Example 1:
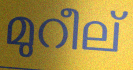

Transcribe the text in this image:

മുറീല്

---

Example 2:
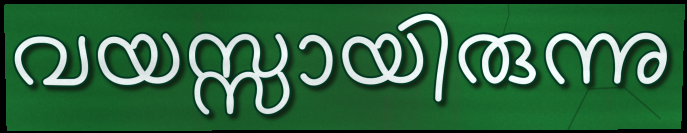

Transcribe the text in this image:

വയസ്സായിരുന്നു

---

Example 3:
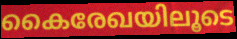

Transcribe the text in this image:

കൈരേഖയിലൂടെ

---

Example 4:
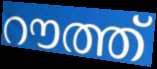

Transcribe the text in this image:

റൗത്ത്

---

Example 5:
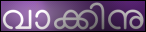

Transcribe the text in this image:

വാക്കിനു